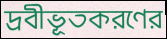
দ্রবীভূতকরণের